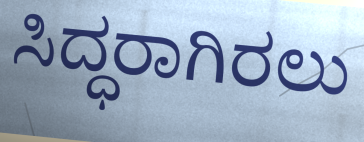
ಸಿದ್ಧರಾಗಿರಲು